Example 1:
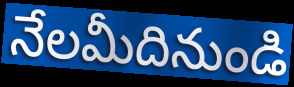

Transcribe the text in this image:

నేలమీదినుండి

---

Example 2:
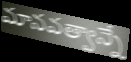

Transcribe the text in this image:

మానవత్వాన్నే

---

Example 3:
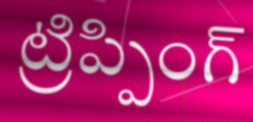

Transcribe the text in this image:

ట్రిప్పింగ్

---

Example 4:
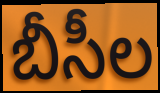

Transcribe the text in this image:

బీసీల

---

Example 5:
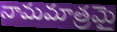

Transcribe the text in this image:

నామమాత్రమై